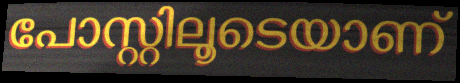
പോസ്റ്റിലൂടെയാണ്